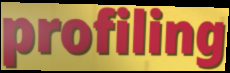
profiling